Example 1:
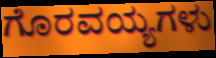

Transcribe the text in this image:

ಗೊರವಯ್ಯಗಳು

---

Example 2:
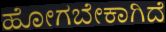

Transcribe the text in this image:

ಹೋಗಬೇಕಾಗಿದೆ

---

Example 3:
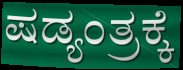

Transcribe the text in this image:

ಷಡ್ಯಂತ್ರಕ್ಕೆ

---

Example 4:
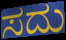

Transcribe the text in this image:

ಸದು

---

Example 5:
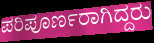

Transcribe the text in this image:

ಪರಿಪೂರ್ಣರಾಗಿದ್ದರು